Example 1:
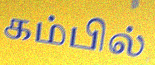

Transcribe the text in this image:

கம்பில்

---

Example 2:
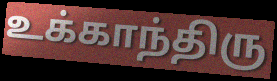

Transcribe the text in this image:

உக்காந்திரு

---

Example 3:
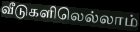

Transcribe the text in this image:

வீடுகளிலெல்லாம்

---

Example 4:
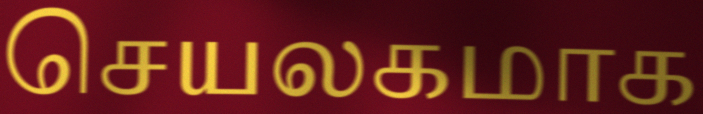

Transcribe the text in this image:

செயலகமாக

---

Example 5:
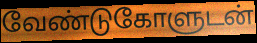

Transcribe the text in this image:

வேண்டுகோளுடன்